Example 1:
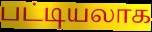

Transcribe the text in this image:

பட்டியலாக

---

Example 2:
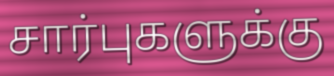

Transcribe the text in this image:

சார்புகளுக்கு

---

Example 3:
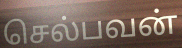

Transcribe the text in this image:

செல்பவன்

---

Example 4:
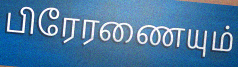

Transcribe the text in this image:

பிரேரணையும்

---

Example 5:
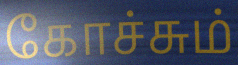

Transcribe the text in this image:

கோச்சும்